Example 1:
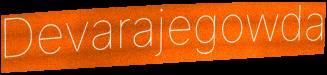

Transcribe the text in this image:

Devarajegowda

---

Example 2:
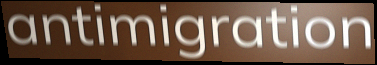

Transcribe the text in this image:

antimigration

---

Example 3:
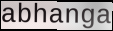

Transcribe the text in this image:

abhanga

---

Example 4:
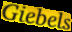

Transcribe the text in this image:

Giebels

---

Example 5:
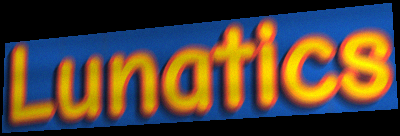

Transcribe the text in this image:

Lunatics